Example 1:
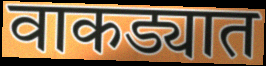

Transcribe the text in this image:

वाकड्यात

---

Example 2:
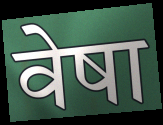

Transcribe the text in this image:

वेषा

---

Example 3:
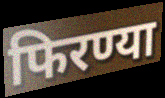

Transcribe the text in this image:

फिरण्या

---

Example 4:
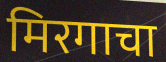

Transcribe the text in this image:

मिरगाचा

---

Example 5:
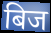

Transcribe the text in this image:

बिज